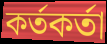
কর্তকর্তা